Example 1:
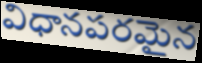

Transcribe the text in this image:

విధానపరమైన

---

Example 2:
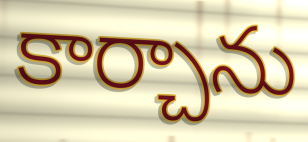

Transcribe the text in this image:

కార్చాను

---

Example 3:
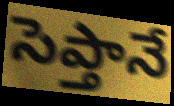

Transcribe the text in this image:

సెప్తానే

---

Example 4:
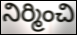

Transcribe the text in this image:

నిర్మించి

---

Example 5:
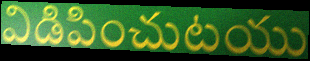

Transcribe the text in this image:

విడిపించుటయు